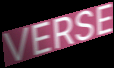
VERSE